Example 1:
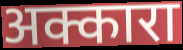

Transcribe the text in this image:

अक्कारा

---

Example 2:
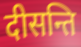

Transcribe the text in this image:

दीसन्ति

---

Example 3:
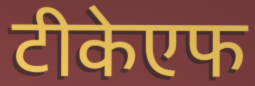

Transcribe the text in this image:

टीकेएफ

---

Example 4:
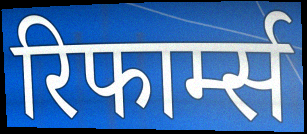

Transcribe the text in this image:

रिफार्म्स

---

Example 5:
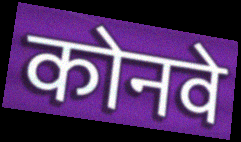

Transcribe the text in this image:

कोनवे